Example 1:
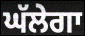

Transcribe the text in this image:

ਘੱਲੇਗਾ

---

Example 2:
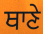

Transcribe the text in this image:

ਥਾਣੇ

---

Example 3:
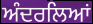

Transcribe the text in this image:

ਅੰਦਰਲਿਆਂ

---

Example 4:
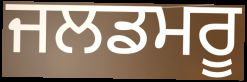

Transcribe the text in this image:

ਜਲਡਮਰੂ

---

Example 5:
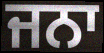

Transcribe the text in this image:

ਜਨਾ